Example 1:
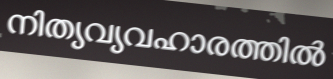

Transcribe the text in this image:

നിത്യവ്യവഹാരത്തിൽ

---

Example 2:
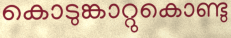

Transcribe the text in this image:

കൊടുങ്കാറ്റുകൊണ്ടു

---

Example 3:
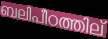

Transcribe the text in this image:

ബലിപീഠത്തില്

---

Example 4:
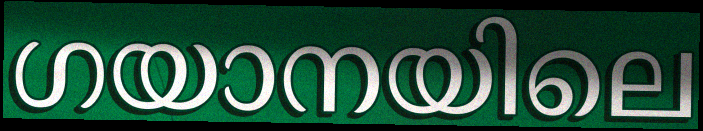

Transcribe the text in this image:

ഗയാനയിലെ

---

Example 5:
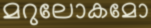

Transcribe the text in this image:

മറുലോകമോ